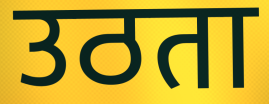
उठता